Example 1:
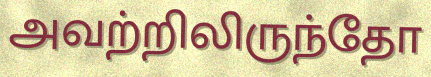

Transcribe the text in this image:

அவற்றிலிருந்தோ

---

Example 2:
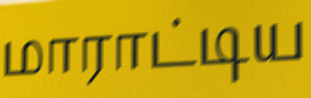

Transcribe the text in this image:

மாராட்டிய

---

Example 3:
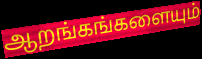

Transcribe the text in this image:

ஆறங்கங்களையும்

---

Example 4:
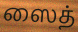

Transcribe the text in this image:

ஸைத்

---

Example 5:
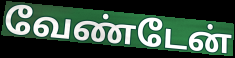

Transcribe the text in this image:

வேண்டேன்